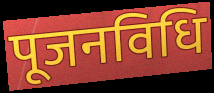
पूजनविधि